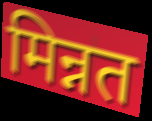
मिन्नत